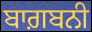
ਬਾਗ਼ਬਨੀ